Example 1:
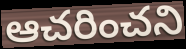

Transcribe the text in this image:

ఆచరించని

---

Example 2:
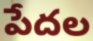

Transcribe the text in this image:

పేదల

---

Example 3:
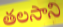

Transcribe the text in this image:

తలసాని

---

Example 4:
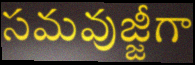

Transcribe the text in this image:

సమవుజ్జీగా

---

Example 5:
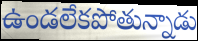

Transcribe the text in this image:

ఉండలేకపోతున్నాడు